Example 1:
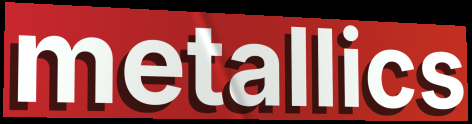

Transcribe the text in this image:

metallics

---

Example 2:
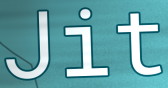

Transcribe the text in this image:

Jit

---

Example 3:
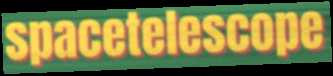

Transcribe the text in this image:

spacetelescope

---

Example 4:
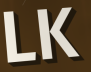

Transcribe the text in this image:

LK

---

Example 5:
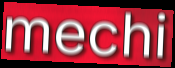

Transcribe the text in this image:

mechi